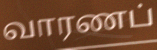
வாரணப்